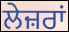
ਲੇਜ਼ਰਾਂ